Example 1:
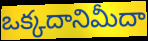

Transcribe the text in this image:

ఒక్కదానిమీదా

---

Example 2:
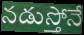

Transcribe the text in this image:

నడుస్తోనే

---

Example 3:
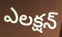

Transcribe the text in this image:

ఎలక్షన్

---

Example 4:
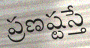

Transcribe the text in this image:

ప్రణష్టస్తే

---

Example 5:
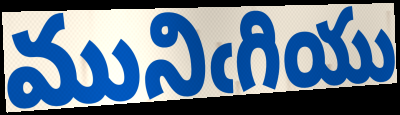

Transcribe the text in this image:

మునిఁగియు